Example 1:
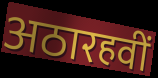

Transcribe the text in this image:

अठारहवीं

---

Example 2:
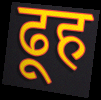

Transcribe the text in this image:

ढूह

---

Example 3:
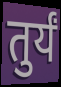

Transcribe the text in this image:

तुर्यं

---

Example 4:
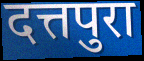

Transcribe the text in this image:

दत्तपुरा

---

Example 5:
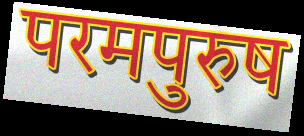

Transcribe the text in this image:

परमपुरुष